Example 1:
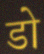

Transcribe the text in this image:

डो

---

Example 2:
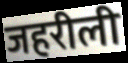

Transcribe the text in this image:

जहरीली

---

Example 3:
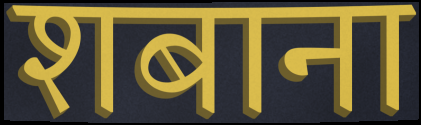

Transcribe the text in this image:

शबाना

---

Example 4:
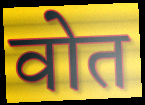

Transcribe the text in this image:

वोत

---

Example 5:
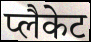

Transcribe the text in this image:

प्लैकेट